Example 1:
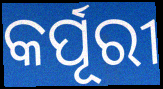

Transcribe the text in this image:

କର୍ପୂରୀ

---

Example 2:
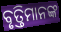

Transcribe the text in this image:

ବୃତ୍ତିମାନଙ୍କ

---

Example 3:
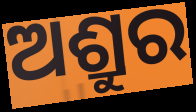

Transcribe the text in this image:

ଅଶ୍ରୁର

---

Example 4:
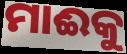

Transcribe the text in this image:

ମାଈକୁ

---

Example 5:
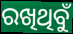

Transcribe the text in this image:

ରଖିଥିବୁଁ